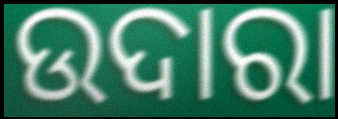
ଉଦାରା